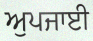
ਅੁਪਜਾਈ